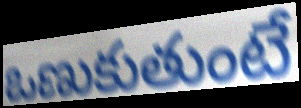
ఒణుకుతుంటే